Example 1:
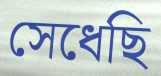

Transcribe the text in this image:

সেধেছি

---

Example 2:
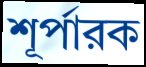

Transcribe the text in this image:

শূর্পারক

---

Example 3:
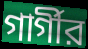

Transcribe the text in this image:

গার্গীর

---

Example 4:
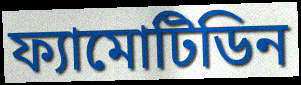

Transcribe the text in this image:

ফ্যামোটিডিন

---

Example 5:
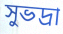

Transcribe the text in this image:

সুভদ্রা